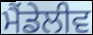
ਮੈਂਡੇਲੀਵ